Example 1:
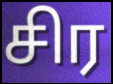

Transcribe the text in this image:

சிர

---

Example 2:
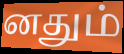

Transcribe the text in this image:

னதும்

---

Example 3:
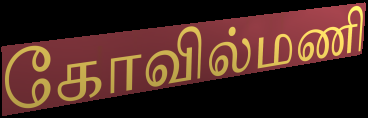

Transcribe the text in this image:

கோவில்மணி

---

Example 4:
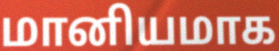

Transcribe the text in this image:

மானியமாக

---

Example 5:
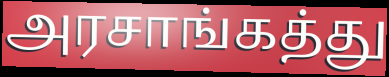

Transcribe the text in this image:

அரசாங்கத்து